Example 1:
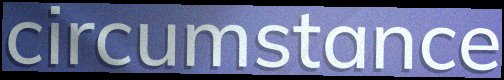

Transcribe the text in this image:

circumstance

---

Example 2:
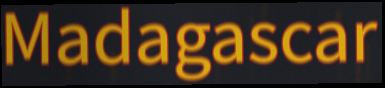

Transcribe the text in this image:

Madagascar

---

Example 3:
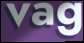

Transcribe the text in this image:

vag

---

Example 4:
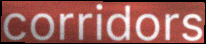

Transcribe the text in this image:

corridors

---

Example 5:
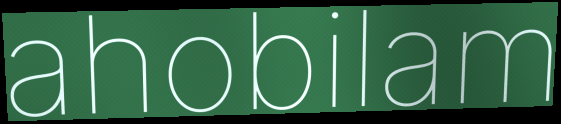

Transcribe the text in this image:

ahobilam